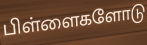
பிள்ளைகளோடு